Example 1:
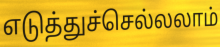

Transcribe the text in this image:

எடுத்துச்செல்லலாம்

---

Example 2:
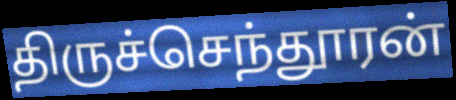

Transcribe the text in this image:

திருச்செந்தூரன்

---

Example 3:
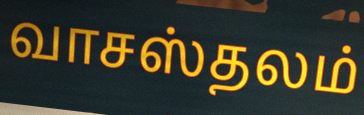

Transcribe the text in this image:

வாசஸ்தலம்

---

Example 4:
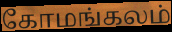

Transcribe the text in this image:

கோமங்கலம்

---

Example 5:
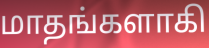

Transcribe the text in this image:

மாதங்களாகி